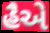
હૈએ